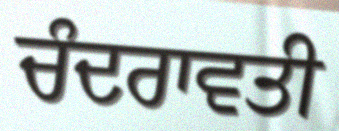
ਚੰਦਰਾਵਤੀ